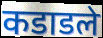
कडाडले